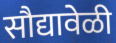
सौद्यावेळी